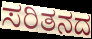
ಸರಿತನದ